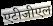
एटीजीएल